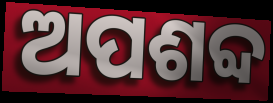
ଅପଶବ୍ଦ